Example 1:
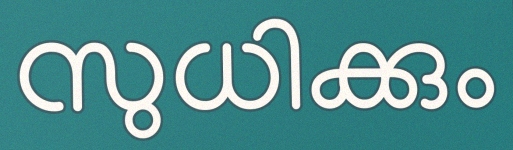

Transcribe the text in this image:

സുധിക്കും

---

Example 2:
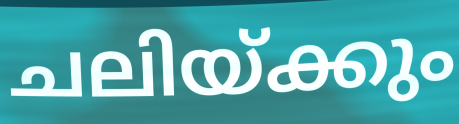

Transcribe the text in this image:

ചലിയ്ക്കും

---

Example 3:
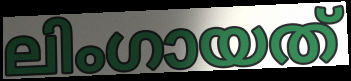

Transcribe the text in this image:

ലിംഗായത്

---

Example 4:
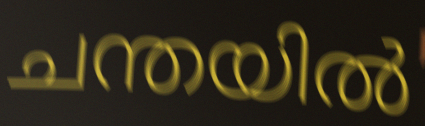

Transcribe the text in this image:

ചന്തയിൽ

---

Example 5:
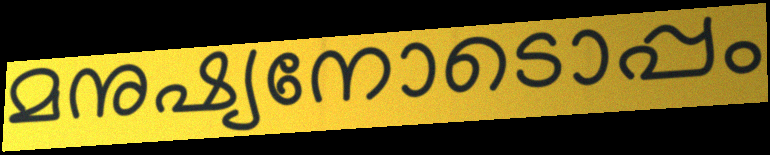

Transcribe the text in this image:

മനുഷ്യനോടൊപ്പം